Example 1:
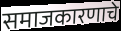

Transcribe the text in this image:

समाजकारणाचे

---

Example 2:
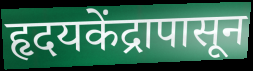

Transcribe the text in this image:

हृदयकेंद्रापासून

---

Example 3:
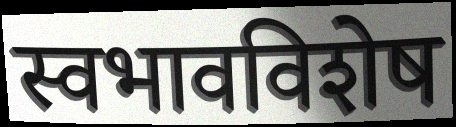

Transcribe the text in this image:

स्वभावविशेष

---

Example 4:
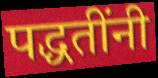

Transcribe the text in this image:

पद्धतींनी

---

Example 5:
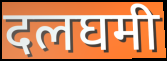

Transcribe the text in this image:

दलघमी